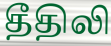
தீதிலி